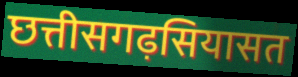
छत्तीसगढ़सियासत